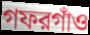
গফরগাঁও